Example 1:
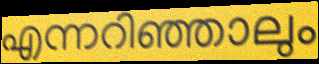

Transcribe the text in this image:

എന്നറിഞ്ഞാലും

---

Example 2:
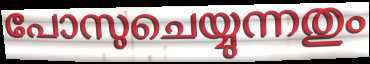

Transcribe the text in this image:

പോസുചെയ്യുന്നതും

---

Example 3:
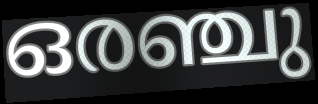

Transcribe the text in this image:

ഒരഞ്ചു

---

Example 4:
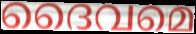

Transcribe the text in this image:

ദൈവമെ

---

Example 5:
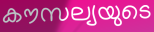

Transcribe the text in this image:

കൗസല്യയുടെ